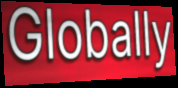
Globally